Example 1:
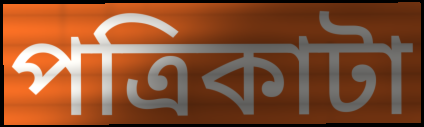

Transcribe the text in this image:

পত্রিকাটা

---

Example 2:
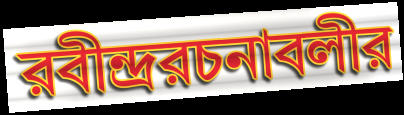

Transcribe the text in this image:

রবীন্দ্ররচনাবলীর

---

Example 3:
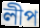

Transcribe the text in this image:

লীপ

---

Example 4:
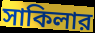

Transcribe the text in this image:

সাকিলার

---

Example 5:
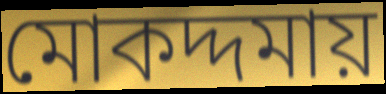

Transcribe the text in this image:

মোকদ্দমায়